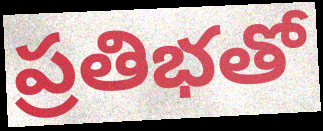
ప్రతిభతో